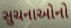
સુચનાઓનો